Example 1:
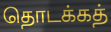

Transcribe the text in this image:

தொடக்கத்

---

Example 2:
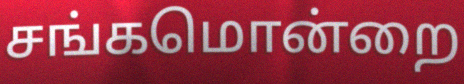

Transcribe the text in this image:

சங்கமொன்றை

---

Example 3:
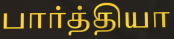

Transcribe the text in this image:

பார்த்தியா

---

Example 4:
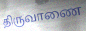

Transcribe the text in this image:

திருவாணை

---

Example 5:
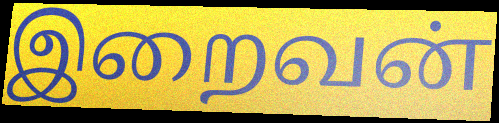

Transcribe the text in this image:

இறைவன்